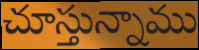
చూస్తున్నాము